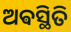
ଅଵସ୍ଥିତି